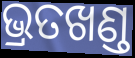
ଭ୍ରତଖଣ୍ଡ